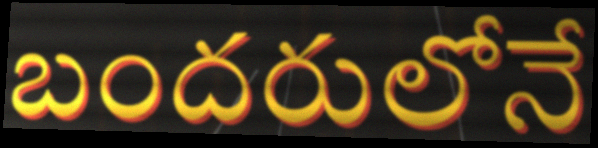
బందరులోనే